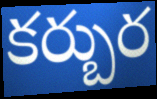
కర్బుర